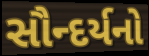
સૌન્દર્યનો